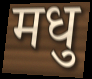
मधु